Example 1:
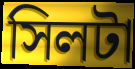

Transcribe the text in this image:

সিলটা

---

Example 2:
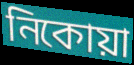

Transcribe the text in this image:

নিকোয়া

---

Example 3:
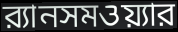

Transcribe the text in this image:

র‍্যানসমওয়্যার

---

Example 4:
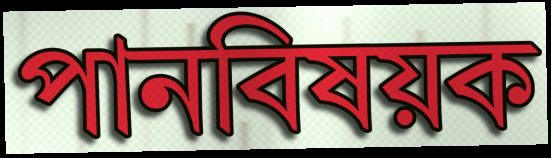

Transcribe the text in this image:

পানবিষয়ক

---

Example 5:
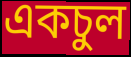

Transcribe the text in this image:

একচুল